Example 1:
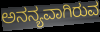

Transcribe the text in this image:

ಅನನ್ಯವಾಗಿರುವ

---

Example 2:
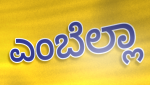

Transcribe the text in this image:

ಎಂಬೆಲ್ಲಾ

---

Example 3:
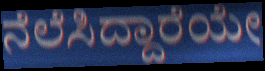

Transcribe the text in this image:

ನೆಲೆಸಿದ್ದಾರೆಯೇ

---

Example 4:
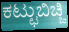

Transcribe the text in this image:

ಕಟ್ಟುಬಿಚ್ಚಿ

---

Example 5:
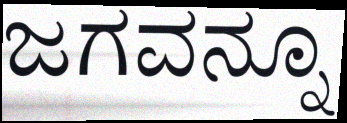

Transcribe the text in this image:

ಜಗವನ್ನೂ